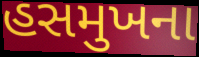
હસમુખના